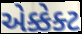
એક્કેક્ટ